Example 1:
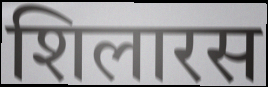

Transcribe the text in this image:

शिलारस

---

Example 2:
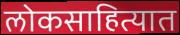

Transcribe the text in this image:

लोकसाहित्यात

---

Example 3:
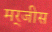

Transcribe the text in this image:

मर्जीस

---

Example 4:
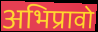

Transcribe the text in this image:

अभिप्रावो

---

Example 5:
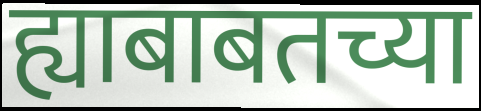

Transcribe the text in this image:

ह्याबाबतच्या